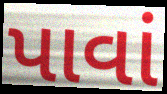
પાવાં